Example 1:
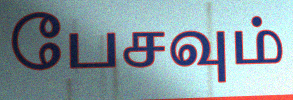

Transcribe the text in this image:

பேசவும்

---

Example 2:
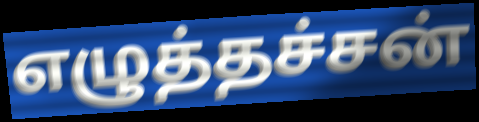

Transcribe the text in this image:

எழுத்தச்சன்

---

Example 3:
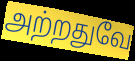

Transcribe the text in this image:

அற்றதுவே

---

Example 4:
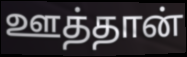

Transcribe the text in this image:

ஊத்தான்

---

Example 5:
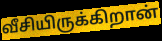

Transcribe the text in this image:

வீசியிருக்கிறான்